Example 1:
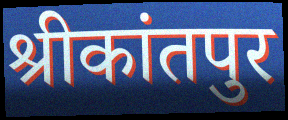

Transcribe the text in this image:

श्रीकांतपुर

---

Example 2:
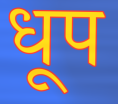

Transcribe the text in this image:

धूप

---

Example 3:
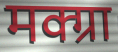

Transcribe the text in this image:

मक्ग्रा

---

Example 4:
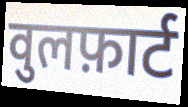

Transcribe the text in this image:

वुलफ़ार्ट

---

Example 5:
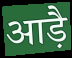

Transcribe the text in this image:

आड़ै